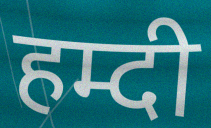
हम्दी